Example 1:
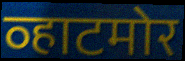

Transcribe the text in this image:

व्हाटमोर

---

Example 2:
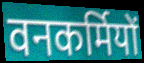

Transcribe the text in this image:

वनकर्मियों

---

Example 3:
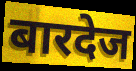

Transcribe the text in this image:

बारदेज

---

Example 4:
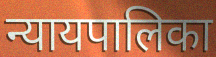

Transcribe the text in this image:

न्यायपालिका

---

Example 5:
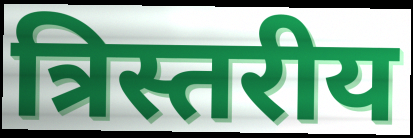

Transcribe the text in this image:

त्रिस्तरीय